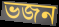
ভজন